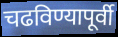
चढविण्यापूर्वी